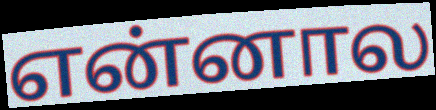
என்னால